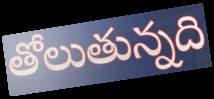
తోలుతున్నది